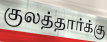
குலத்தார்க்கு